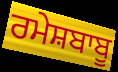
ਰਮੇਸ਼ਬਾਬੂ